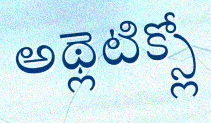
అథ్లెటిక్స్లో